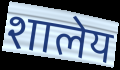
शालेय